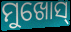
ମୁଖୋସ୍